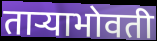
ताऱ्याभोवती